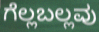
ಗೆಲ್ಲಬಲ್ಲವು